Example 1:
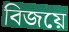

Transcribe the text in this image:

বিজয়ে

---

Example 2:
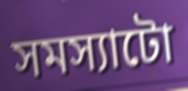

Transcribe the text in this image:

সমস্যাটো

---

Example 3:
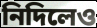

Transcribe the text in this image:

নিদিলেও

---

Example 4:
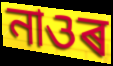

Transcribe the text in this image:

নাওৰ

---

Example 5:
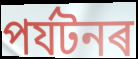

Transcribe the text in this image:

পৰ্যটনৰ